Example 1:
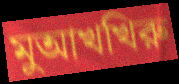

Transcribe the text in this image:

মুআখখিরু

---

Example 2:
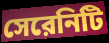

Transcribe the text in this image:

সেরেনিটি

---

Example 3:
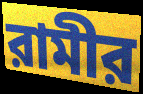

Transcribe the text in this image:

রামীর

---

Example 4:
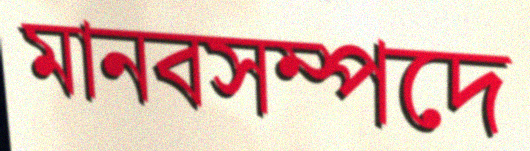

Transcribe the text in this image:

মানবসম্পদে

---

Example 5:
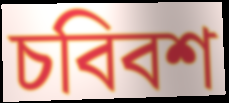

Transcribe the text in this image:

চবিবশ